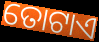
ତୋଟାଏ